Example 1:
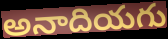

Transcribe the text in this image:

అనాదియగు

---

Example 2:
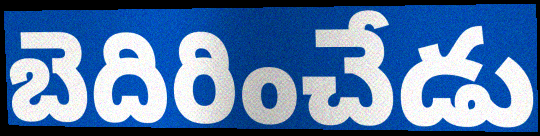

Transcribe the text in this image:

బెదిరించేడు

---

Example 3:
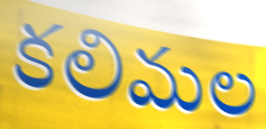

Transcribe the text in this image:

కలిమల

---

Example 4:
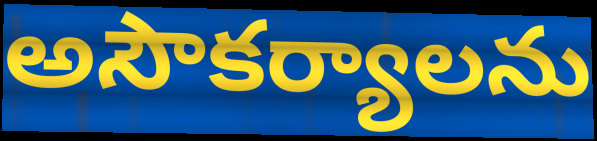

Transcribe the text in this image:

అసౌకర్యాలను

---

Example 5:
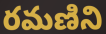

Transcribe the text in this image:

రమణిని